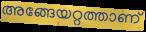
അങ്ങേയറ്റത്താണ്